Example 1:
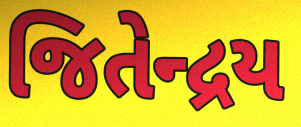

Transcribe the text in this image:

જિતેન્દ્રય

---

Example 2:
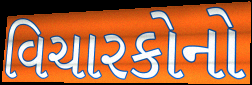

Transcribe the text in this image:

વિચારકોનો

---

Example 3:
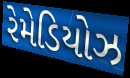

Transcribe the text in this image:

રેમેડિયોઝ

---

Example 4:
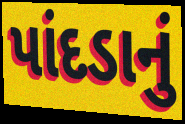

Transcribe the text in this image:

પાંદડાનું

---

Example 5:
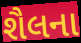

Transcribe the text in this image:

શૈલના